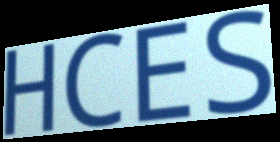
HCES